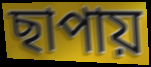
ছাপায়